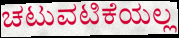
ಚಟುವಟಿಕೆಯಲ್ಲ